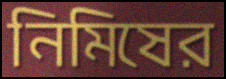
নিমিষের